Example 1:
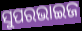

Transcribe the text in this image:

ସୁପରଭାଇଜ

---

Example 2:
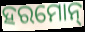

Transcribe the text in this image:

ହରମୋନ୍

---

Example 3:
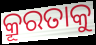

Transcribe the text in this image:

କ୍ରୂରତାକୁ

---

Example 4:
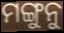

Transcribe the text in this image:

ମଙ୍ଗୁନୁ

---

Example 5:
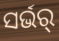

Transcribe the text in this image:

ସର୍ଭର୍